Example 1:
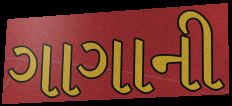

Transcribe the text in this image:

ગાગાની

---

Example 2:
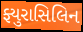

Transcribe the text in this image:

ફ્યુરાસિલિન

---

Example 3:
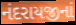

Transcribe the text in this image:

નંદરાયજીનાં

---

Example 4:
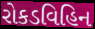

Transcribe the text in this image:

રોકડવિહિન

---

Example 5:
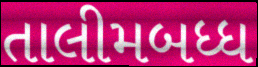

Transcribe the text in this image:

તાલીમબધ્ધ